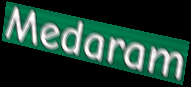
Medaram